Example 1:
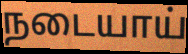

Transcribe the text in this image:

நடையாய்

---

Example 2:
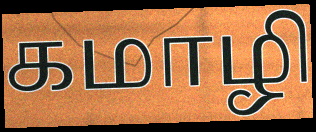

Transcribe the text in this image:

கமாழி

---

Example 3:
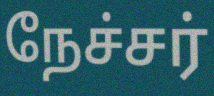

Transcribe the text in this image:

நேச்சர்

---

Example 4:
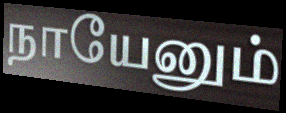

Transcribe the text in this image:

நாயேனும்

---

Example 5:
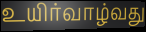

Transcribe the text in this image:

உயிர்வாழ்வது